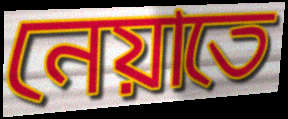
নেয়াতে